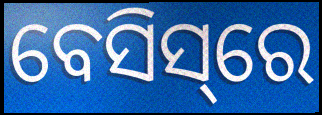
ବେସିସ୍‌ରେ